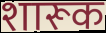
शारूक